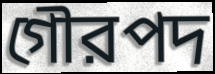
গৌরপদ